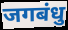
जगबंधु